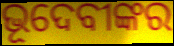
ଭୂଦେବୀଙ୍କର